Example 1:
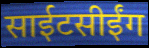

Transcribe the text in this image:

साईटसीईंग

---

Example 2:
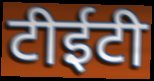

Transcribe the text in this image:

टीईटी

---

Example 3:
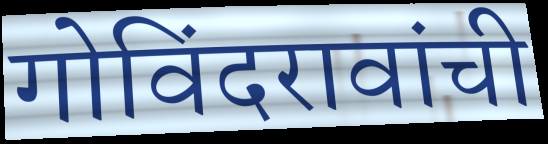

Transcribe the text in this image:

गोविंदरावांची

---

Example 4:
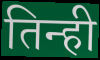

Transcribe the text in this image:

तिन्ही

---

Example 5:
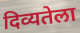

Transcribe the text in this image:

दिव्यतेला